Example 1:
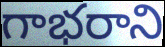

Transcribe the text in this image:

గాభరాని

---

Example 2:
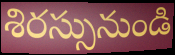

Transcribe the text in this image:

శిరస్సునుండి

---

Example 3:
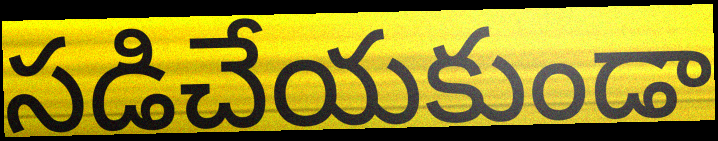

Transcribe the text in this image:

సడిచేయకుండా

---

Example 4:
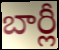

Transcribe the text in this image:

బార్లీ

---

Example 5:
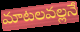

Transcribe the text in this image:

మాటలవల్లనే